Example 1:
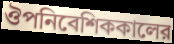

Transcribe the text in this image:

ঔপনিবেশিককালের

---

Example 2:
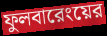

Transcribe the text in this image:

ফুলবারেংয়ের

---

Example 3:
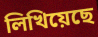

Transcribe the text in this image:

লিখিয়েছে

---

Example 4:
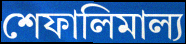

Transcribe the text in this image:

শেফালিমাল্য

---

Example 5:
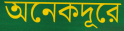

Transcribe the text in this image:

অনেকদূরে